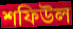
শফিউল